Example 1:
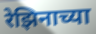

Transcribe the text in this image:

रेझिनाच्या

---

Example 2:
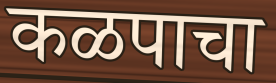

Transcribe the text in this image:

कळपाचा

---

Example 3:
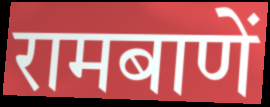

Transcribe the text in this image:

रामबाणें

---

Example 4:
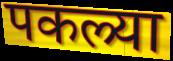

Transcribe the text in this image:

पकल्या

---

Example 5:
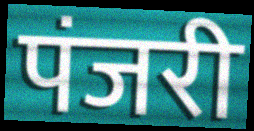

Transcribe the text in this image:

पंजरी